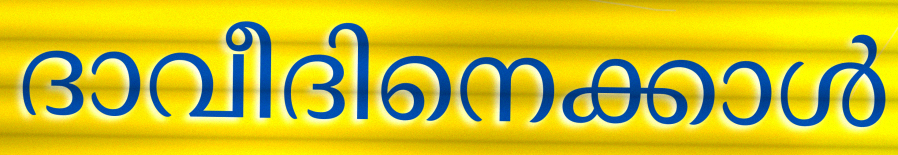
ദാവീദിനെക്കാൾ